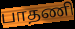
பாதணி